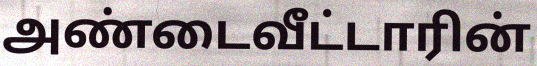
அண்டைவீட்டாரின்